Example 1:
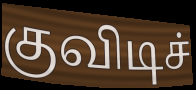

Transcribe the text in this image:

குவிடிச்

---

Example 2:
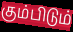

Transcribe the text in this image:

கும்பிடும்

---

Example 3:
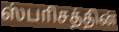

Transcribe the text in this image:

ஸ்பரிசத்தின்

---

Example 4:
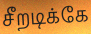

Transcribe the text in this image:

சீறடிக்கே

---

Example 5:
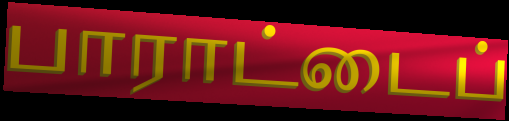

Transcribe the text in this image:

பாராட்டைப்